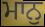
ਮਾਨੁ